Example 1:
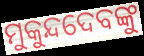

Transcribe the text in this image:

ମୁକୁନ୍ଦଦେବଙ୍କୁ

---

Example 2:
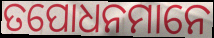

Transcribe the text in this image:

ତପୋଧନମାନେ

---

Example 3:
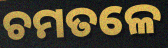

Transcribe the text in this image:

ଚମତଳେ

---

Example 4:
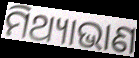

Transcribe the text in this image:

ମିଥ୍ୟାଭାଣ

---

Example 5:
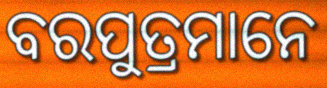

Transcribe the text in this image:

ବରପୁତ୍ରମାନେ